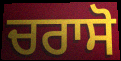
ਚਰਾਸੋ